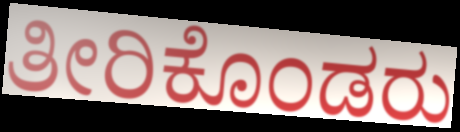
ತೀರಿಕೊಂಡರು